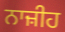
ਨਾਜ਼ੀਹ